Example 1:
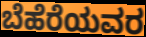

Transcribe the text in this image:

ಬೆಹೆರೆಯವರ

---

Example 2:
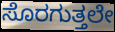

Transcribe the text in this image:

ಸೊರಗುತ್ತಲೇ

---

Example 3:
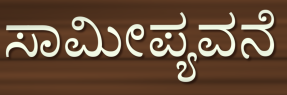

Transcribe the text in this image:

ಸಾಮೀಪ್ಯವನೆ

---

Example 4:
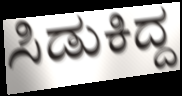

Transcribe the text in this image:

ಸಿಡುಕಿದ್ದ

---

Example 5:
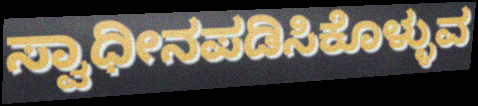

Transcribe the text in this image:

ಸ್ವಾಧೀನಪಡಿಸಿಕೊಳ್ಳುವ